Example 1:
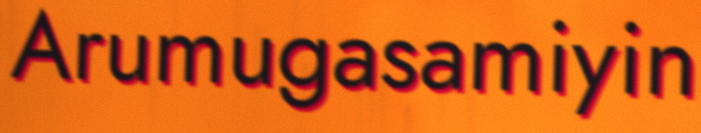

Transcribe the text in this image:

Arumugasamiyin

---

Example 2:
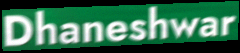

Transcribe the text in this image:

Dhaneshwar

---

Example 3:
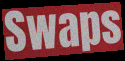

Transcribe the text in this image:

Swaps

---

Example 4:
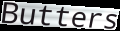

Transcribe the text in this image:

Butters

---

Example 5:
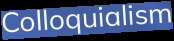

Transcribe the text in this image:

Colloquialism